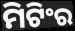
ମିଟିଂର